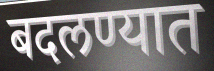
बदलण्यात